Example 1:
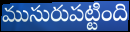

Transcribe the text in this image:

ముసురుపట్టింది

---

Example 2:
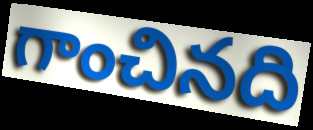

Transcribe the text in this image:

గాంచినది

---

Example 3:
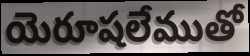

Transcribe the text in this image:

యెరూషలేముతో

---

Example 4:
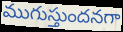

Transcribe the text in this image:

ముగుస్తుందనగా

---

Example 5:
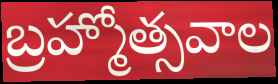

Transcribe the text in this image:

బ్రహ్మోత్సవాల